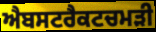
ਐਬਸਟਰੈਕਟਚਮੜੀ